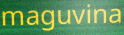
maguvina